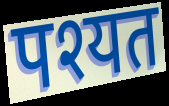
पश्यत